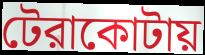
টেরাকোটায়